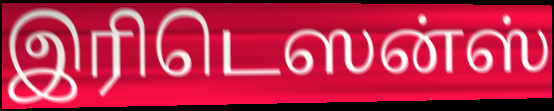
இரிடெஸன்ஸ்